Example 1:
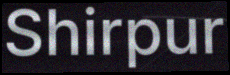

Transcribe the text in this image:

Shirpur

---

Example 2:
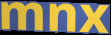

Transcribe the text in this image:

mnx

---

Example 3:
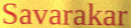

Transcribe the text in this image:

Savarakar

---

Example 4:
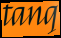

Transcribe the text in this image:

tanq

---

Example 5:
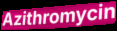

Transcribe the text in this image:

Azithromycin